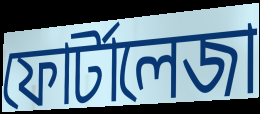
ফোর্টালেজা